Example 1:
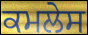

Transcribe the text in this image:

ਕਮਲੇਸ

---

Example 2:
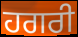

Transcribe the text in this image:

ਹਗਰੀ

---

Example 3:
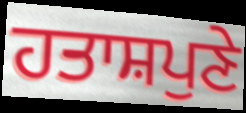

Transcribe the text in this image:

ਹਤਾਸ਼ਪੁਣੇ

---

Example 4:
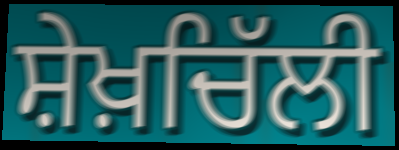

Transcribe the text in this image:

ਸ਼ੇਖ਼ਚਿੱਲੀ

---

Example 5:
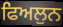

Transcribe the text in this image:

ਫਿਅਲੁਨ